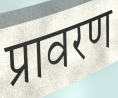
प्रावरण